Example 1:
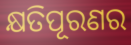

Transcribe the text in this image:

କ୍ଷତିପୂରଣର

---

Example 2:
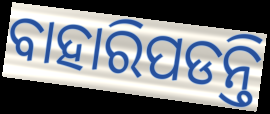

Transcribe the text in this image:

ବାହାରିପଡନ୍ତି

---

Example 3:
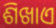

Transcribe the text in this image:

ଶିଖାଏ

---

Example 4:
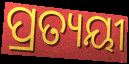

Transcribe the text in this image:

ପ୍ରତ୍ୟୟୀ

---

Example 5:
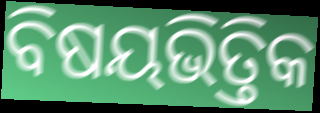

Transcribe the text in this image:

ବିଷୟଭିତ୍ତିକ